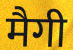
मैगी